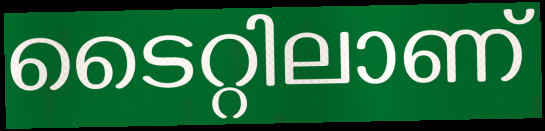
ടൈറ്റിലാണ്